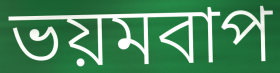
ভয়মবাপ